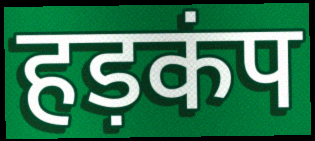
हड़कंप